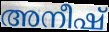
അനീഷ്